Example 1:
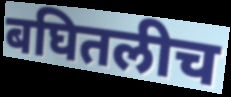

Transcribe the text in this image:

बघितलीच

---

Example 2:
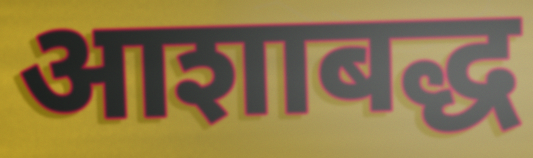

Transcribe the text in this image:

आशाबद्ध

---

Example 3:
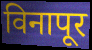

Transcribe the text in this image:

विनापूर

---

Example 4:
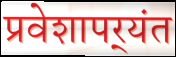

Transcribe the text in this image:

प्रवेशापर्यंत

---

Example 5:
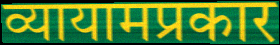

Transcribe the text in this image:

व्यायामप्रकार